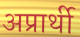
अप्रार्थी